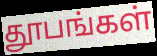
தூபங்கள்